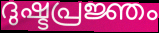
ദുഷ്ടപ്രജ്ഞം